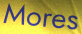
Mores